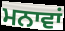
ਮਨਾਵਾਂ